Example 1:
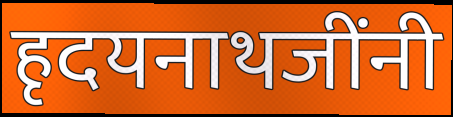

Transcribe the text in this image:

हृदयनाथजींनी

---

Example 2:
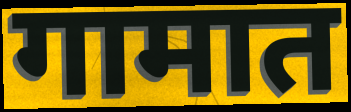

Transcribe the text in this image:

गामात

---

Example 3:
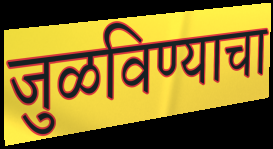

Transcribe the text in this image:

जुळविण्याचा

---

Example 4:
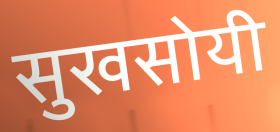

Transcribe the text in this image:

सुखसोयी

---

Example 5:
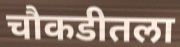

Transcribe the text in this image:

चौकडीतला